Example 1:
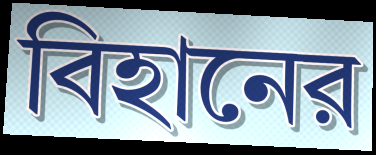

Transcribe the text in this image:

বিহানের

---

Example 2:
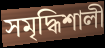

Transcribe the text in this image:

সমৃদ্ধিশালী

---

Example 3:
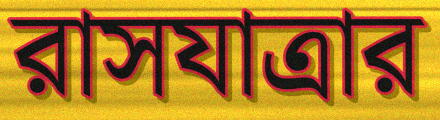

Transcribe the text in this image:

রাসযাত্রার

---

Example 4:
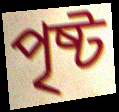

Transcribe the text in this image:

পৃষ্ট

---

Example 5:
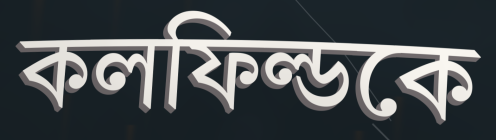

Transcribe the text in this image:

কলফিল্ডকে